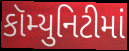
કૉમ્યુનિટીમાં